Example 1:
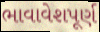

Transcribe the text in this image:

ભાવાવેશપૂર્ણ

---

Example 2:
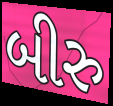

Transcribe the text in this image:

બીરુ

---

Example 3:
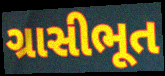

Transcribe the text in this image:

ગ્રાસીભૂત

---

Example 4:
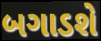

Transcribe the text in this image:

બગાડશે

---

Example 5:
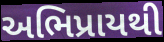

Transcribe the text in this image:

અભિપ્રાયથી